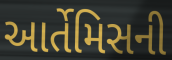
આર્તેમિસની